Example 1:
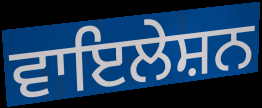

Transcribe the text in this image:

ਵਾਇਲੇਸ਼ਨ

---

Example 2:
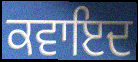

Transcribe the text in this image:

ਕਵਾਇਦ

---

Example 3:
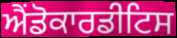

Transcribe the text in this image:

ਐਂਡੋਕਾਰਡੀਟਿਸ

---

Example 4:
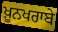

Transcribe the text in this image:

ਖ਼ੂਨਖਰਾਬੇ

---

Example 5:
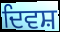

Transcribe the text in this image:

ਦਿਵਸ਼